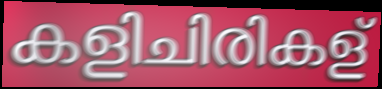
കളിചിരികള്